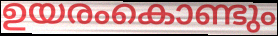
ഉയരംകൊണ്ടും